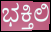
ಭಕ್ತಿಲಿ